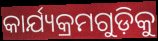
କାର୍ଯ୍ୟକ୍ରମଗୁଡ଼ିକୁ